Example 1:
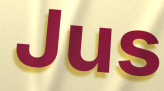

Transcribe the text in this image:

Jus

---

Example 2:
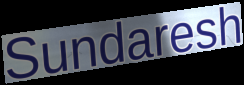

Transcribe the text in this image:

Sundaresh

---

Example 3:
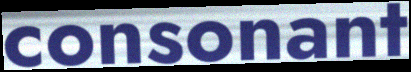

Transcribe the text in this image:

consonant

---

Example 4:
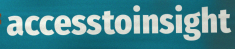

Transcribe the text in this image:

accesstoinsight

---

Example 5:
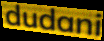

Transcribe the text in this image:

dudani